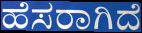
ಹೆಸರಾಗಿದೆ